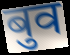
बुव